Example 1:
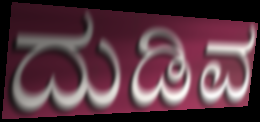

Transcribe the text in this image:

ದುಡಿವ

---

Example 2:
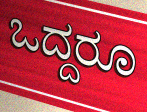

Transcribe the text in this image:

ಒದ್ದರೂ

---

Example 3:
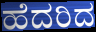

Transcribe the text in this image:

ಹೆದರಿದ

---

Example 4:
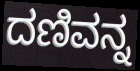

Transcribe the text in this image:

ದಣಿವನ್ನ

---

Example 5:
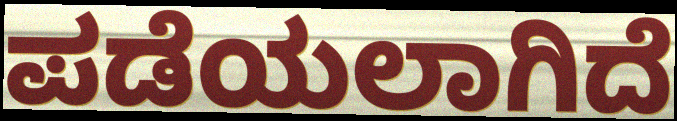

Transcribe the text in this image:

ಪಡೆಯಲಾಗಿದೆ